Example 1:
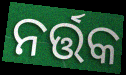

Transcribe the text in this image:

ନର୍ତ୍ତକ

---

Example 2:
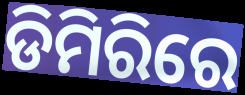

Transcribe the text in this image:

ଡିମିରିରେ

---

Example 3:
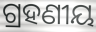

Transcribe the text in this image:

ଗ୍ରହଣୀୟ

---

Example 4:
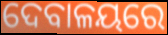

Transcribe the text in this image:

ଦେବାଳୟରେ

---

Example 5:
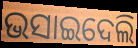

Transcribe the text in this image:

ଭସାଇଦେଲି